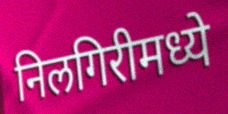
निलगिरीमध्ये